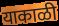
याकाळी